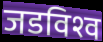
जडविश्व